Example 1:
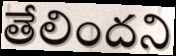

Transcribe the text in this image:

తేలిందని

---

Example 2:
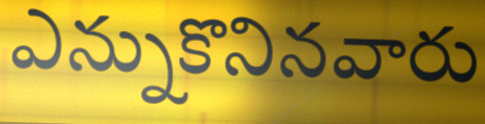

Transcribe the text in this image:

ఎన్నుకొనినవారు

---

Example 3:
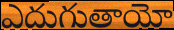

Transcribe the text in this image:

ఎదుగుతాయో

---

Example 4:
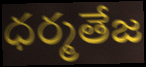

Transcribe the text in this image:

ధర్మతేజ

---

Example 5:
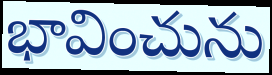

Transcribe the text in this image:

భావించును